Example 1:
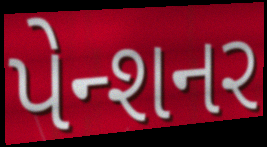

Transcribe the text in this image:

પેન્શનર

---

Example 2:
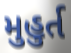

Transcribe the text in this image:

મુહુર્ત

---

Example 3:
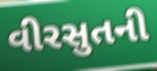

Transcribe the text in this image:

વીરસુતની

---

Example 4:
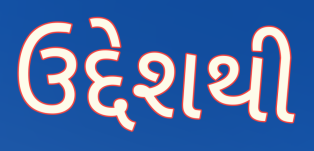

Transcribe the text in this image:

ઉદ્દેશથી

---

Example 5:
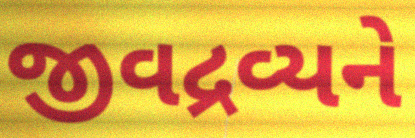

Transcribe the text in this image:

જીવદ્રવ્યને